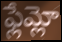
ఫ్లేమ్లో